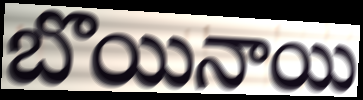
బొయినాయి